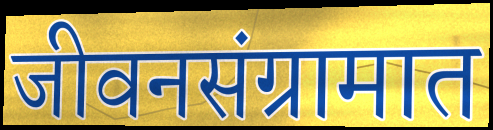
जीवनसंग्रामात